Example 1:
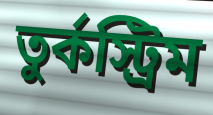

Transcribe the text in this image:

তুর্কস্ট্রিম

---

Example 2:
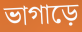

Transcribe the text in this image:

ভাগাড়ে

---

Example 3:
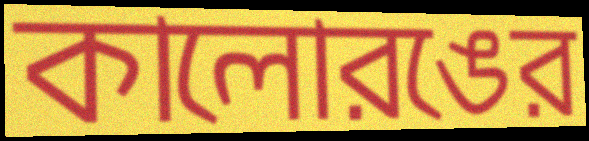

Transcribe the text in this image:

কালোরঙের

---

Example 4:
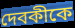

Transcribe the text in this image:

দেবকীকে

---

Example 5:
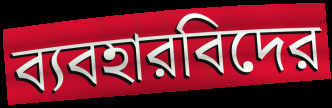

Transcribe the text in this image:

ব্যবহারবিদের